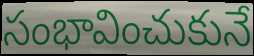
సంభావించుకునే